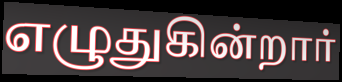
எழுதுகின்றார்